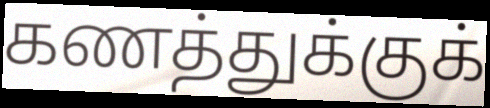
கணத்துக்குக்